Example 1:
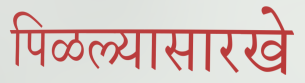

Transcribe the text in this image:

पिळल्यासारखे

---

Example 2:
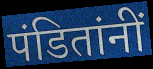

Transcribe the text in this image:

पंडितांनीं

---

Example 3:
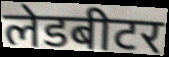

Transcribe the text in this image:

लेडबीटर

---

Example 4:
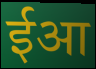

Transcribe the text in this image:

ईआ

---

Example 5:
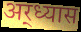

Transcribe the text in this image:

अर्ध्यास